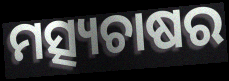
ମତ୍ସ୍ୟଚାଷର